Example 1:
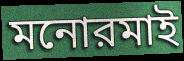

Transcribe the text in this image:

মনোরমাই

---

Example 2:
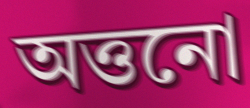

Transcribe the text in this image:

অত্তনো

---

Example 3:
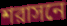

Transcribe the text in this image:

শরাসনে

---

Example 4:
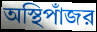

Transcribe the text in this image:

অস্থিপাঁজর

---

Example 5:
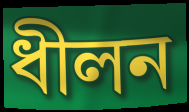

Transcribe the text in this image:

ধীলন